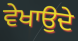
ਵੇਖਾਉਦੇ